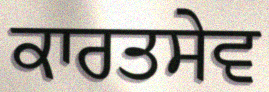
ਕਾਰਤਸੇਵ